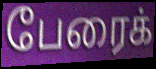
பேரைக்